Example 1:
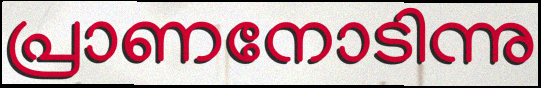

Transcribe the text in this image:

പ്രാണനോടിന്നു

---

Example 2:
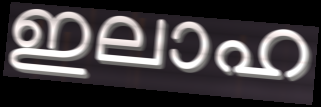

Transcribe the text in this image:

ഇലാഹ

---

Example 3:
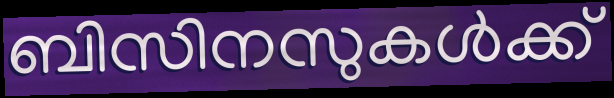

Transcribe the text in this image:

ബിസിനസുകൾക്ക്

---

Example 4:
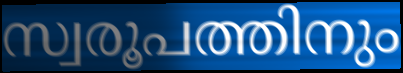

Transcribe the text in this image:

സ്വരൂപത്തിനും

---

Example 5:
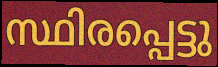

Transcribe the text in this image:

സ്ഥിരപ്പെട്ടു